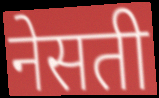
नेसती